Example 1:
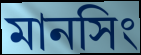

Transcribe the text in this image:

মানসিং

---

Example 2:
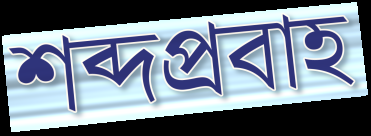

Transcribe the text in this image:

শব্দপ্রবাহ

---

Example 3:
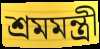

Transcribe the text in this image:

শ্রমমন্ত্রী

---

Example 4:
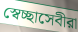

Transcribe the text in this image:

স্বেচ্ছাসেবীরা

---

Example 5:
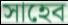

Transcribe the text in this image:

সাহেব